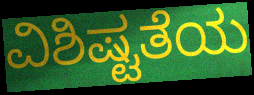
ವಿಶಿಷ್ಟತೆಯ